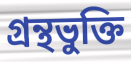
গ্রন্থভুক্তি